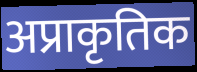
अप्राकृतिक